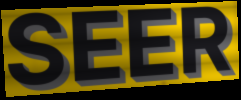
SEER